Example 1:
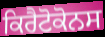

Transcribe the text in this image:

ਕਿਰੈਟੋਕੋਨਸ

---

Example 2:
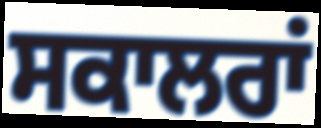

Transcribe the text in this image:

ਸਕਾਲਰਾਂ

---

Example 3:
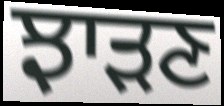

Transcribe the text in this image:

ਝਾੜਣ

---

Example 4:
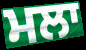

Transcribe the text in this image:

ਮਲਾ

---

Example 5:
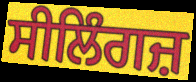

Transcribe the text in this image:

ਸੀਲਿੰਗਜ਼